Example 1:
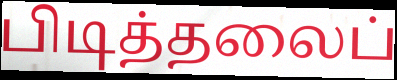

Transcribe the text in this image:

பிடித்தலைப்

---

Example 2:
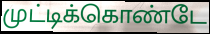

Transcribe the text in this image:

முட்டிக்கொண்டே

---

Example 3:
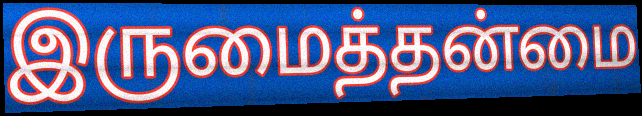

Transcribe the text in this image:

இருமைத்தன்மை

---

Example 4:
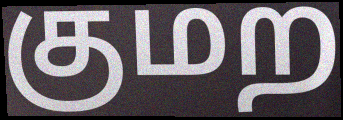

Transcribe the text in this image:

குமற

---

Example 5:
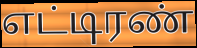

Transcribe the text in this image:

எட்டிரண்